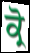
ਕ੍ਰੋ